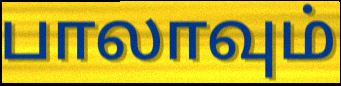
பாலாவும்